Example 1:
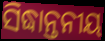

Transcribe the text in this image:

ସିଦ୍ଧାନ୍ତନୀୟ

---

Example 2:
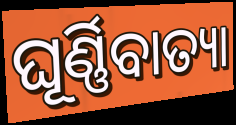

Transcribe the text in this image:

ଘୂର୍ଣ୍ଣିବାତ୍ୟା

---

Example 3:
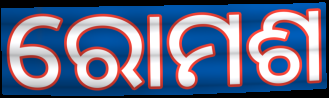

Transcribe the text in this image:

ରୋମଶ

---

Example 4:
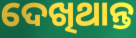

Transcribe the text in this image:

ଦେଖିଥାନ୍ତ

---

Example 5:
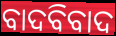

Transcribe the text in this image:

ବାଦବିବାଦ